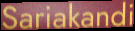
Sariakandi